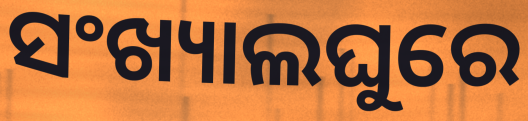
ସଂଖ୍ୟାଲଘୁରେ